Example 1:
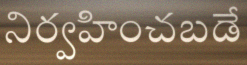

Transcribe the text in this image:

నిర్వహించబడే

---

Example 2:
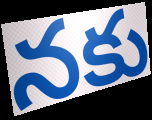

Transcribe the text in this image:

నకు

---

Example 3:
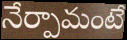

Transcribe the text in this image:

నేర్పామంటే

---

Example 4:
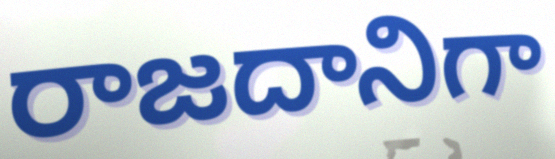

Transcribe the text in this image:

రాజదానిగా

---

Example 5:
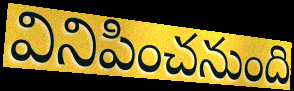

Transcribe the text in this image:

వినిపించనుంది